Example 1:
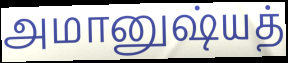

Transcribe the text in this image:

அமானுஷ்யத்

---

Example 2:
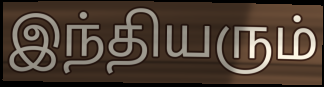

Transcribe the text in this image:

இந்தியரும்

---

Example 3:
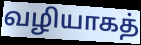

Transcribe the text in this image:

வழியாகத்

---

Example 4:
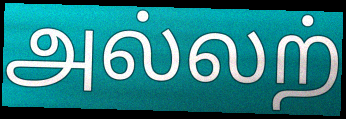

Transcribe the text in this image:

அல்லற்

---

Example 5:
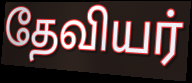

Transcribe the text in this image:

தேவியர்